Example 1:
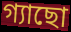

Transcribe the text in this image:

গ্যাছো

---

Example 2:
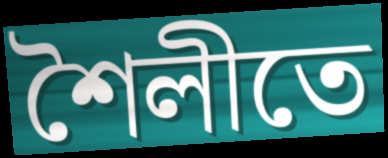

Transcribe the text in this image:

শৈলীতে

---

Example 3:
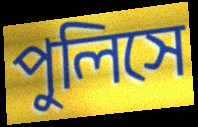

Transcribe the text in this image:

পুলিসে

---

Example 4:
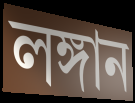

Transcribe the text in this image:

লঙ্গান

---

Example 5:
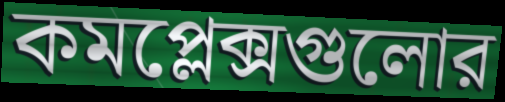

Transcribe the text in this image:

কমপ্লেক্সগুলোর